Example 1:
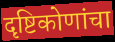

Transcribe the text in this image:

दृष्टिकोणांचा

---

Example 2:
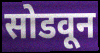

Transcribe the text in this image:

सोडवून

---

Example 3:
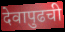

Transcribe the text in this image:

देवापुढची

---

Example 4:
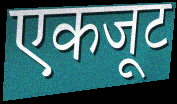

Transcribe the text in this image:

एकजूट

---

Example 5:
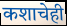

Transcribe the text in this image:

कशाचेही